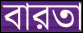
বারতা